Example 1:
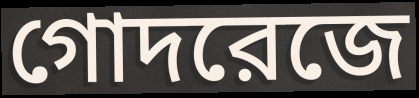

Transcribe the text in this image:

গোদরেজে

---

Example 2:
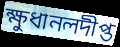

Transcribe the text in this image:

ক্ষুধানলদীপ্ত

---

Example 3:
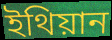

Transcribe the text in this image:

ইথিয়ান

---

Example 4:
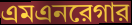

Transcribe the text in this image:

এমএনরেগার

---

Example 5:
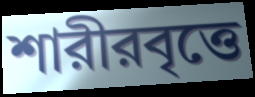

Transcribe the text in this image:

শারীরবৃত্তে